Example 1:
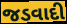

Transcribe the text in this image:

જડવાદી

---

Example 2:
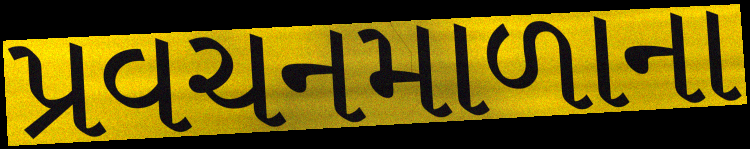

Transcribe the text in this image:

પ્રવચનમાળાના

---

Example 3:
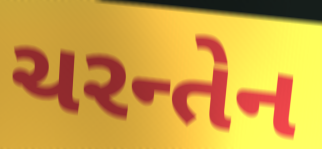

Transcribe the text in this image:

ચરન્તેન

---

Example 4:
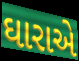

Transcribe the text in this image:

ઘારાએ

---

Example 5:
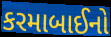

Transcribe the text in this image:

કરમાબાઈનો